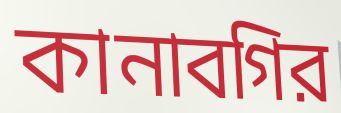
কানাবগির